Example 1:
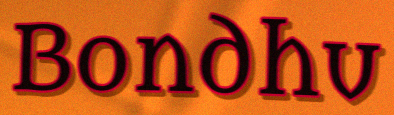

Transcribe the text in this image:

Bondhu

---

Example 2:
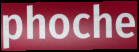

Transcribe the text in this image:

phoche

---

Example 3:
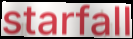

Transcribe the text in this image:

starfall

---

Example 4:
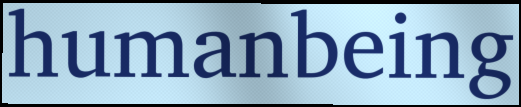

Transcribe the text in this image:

humanbeing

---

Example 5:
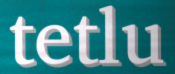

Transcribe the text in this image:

tetlu